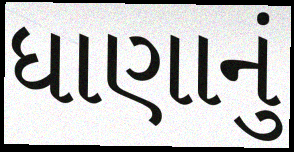
ધાણાનું